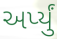
અર્પ્યું